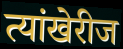
त्यांखेरीज